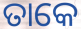
ତାକେ